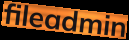
fileadmin